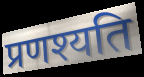
प्रणश्यति